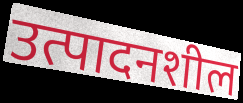
उत्पादनशील